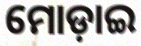
ମୋଡ଼ାଇ